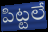
పిట్టలే